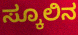
ಸ್ಕೂಲಿನ